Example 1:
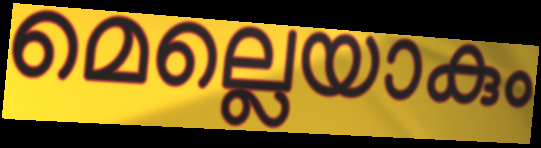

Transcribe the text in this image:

മെല്ലെയാകും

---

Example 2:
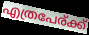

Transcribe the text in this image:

എത്രപേര്ക്ക്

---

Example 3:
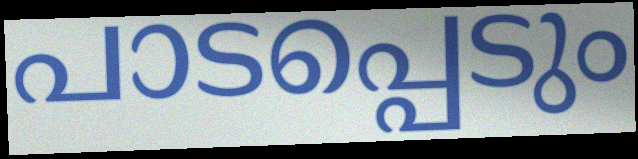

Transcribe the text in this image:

പാടപ്പെടും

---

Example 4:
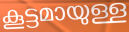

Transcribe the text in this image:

കൂട്ടമായുള്ള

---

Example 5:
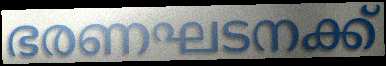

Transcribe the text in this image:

ഭരണഘടനക്ക്